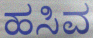
ಹಸಿವ